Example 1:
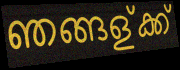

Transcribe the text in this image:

ഞങ്ങള്ക്ക്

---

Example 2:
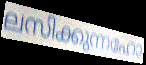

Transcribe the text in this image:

ലസിക്കുന്നഹോ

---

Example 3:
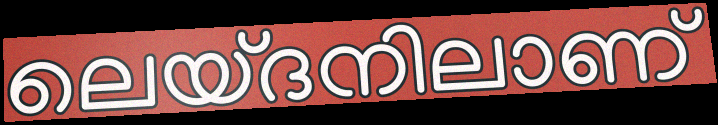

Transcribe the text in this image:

ലെയ്ദനിലാണ്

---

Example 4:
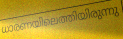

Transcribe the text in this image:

ധാരണയിലെത്തിയിരുന്നു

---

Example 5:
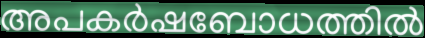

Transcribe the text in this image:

അപകർഷബോധത്തിൽ